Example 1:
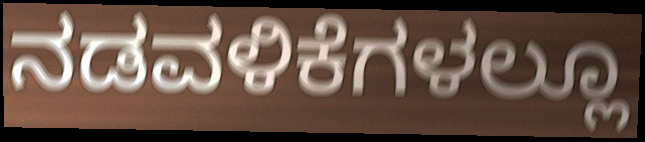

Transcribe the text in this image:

ನಡವಳಿಕೆಗಳಲ್ಲೂ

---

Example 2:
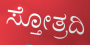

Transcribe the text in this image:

ಸ್ತೋತ್ರದಿ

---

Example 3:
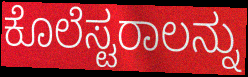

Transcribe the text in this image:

ಕೊಲೆಸ್ಟರಾಲನ್ನು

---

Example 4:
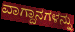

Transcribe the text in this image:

ವಾಗ್ದಾನಗಳನ್ನು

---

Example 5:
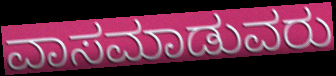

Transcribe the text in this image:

ವಾಸಮಾಡುವರು